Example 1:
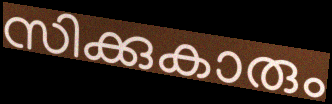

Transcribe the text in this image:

സിക്കുകാരും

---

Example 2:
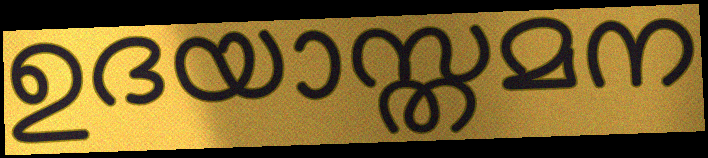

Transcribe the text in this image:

ഉദയാസ്തമന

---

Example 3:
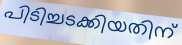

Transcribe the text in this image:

പിടിച്ചടക്കിയതിന്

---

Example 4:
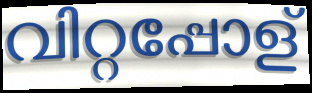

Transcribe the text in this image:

വിറ്റപ്പോള്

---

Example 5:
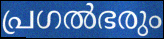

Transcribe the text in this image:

പ്രഗൽഭരും